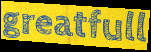
greatfull